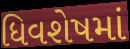
ધિવશેષમાં